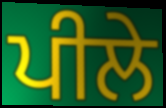
ਪੀਲੇ